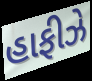
હાફીઝે